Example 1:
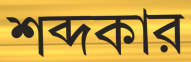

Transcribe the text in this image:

শব্দকার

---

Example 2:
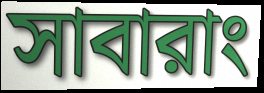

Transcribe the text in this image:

সাবারাং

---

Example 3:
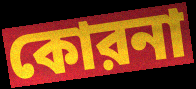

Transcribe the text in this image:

কোরনা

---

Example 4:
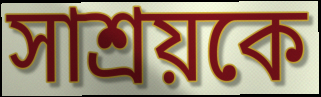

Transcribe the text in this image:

সাশ্রয়কে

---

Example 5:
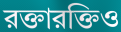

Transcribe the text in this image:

রক্তারক্তিও